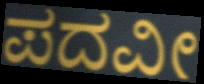
ಪದವೀ